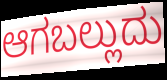
ಆಗಬಲ್ಲುದು